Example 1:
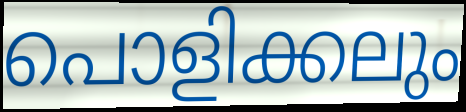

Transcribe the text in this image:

പൊളിക്കലും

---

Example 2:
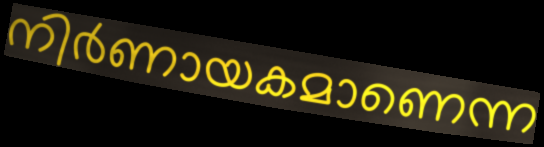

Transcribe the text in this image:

നിർണായകമാണെന്ന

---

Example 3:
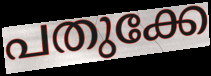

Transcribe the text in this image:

പതുക്കേ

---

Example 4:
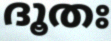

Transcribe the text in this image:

ദൂതഃ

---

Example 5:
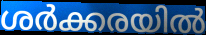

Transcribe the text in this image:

ശർക്കരയിൽ